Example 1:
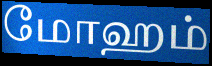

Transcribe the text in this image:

மோஹம்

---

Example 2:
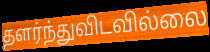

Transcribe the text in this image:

தளர்ந்துவிடவில்லை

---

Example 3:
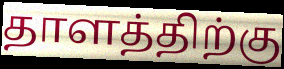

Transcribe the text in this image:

தாளத்திற்கு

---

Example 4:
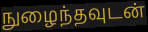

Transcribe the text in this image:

நுழைந்தவுடன்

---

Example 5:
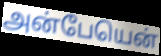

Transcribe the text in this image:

அன்பேயென்